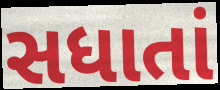
સધાતાં